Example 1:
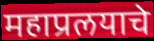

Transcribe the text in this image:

महाप्रलयाचे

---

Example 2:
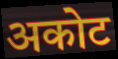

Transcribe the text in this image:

अकोट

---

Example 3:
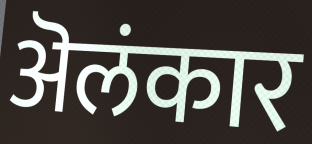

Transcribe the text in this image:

ऄलंकार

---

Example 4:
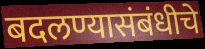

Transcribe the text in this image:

बदलण्यासंबंधीचे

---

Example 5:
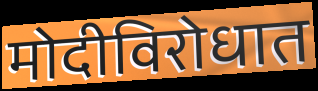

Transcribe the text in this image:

मोदीविरोधात